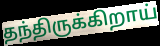
தந்திருக்கிறாய்